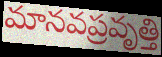
మానవప్రవృత్తి